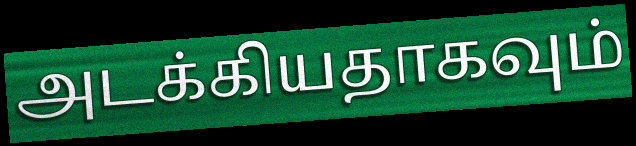
அடக்கியதாகவும்